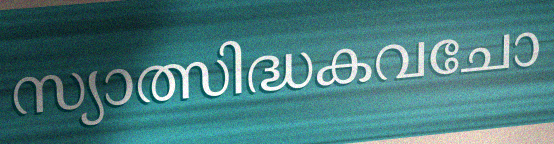
സ്യാത്സിദ്ധകവചോ